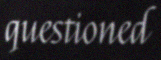
questioned